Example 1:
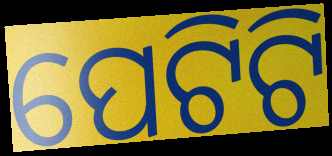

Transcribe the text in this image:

ପେଟିଟି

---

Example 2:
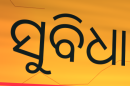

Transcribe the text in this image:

ସୁବିଧା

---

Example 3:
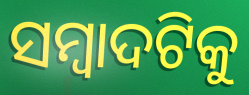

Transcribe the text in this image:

ସମ୍ୱାଦଟିକୁ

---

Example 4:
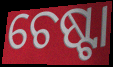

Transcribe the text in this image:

ଚେଷ୍ଟା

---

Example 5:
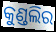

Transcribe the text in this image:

କୁଣ୍ଡଲିର